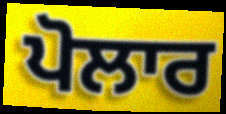
ਪੋਲਾਰ